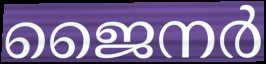
ജൈനർ